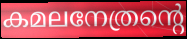
കമലനേത്രന്റെ